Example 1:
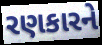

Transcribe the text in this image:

રણકારને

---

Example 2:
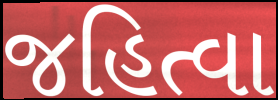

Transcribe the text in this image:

જહિત્વા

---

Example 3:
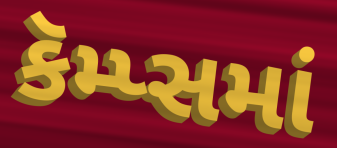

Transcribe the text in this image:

કૅમ્પ્સમાં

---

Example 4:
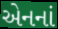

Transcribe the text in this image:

એનનાં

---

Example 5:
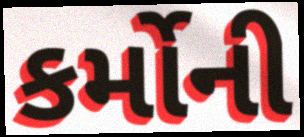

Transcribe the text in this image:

કર્મોની